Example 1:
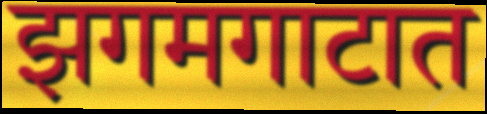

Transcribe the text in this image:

झगमगाटात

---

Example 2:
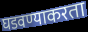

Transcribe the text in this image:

घडवण्याकरता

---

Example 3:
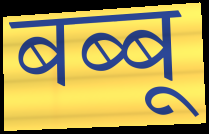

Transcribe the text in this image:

बब्बू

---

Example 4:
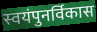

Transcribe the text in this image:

स्वयंपुनर्विकास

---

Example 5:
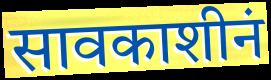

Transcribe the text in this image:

सावकाशीनं